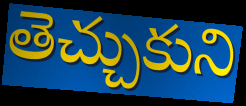
తెచ్చుకుని